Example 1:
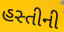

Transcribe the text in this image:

હસ્તીની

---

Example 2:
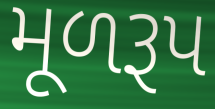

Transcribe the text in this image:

મૂળરૂપ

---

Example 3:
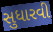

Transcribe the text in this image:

સુધારવી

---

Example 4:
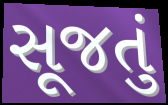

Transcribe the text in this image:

સૂજતું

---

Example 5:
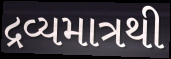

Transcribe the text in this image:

દ્રવ્યમાત્રથી